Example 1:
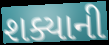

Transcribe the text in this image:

શક્યાની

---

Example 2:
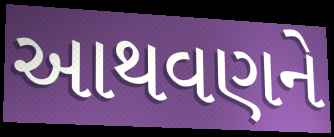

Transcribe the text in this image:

આથવણને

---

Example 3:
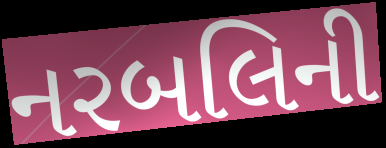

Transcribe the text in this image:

નરબલિની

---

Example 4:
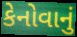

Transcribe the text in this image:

કેનોવાનું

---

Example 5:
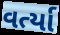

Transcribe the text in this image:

વર્ત્યા